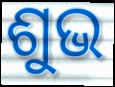
ଶୁଭ